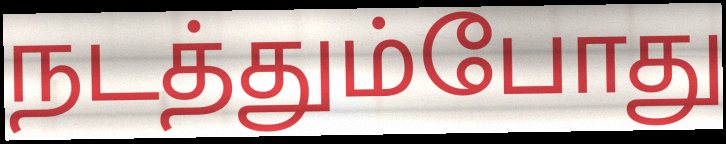
நடத்தும்போது